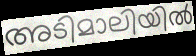
അടിമാലിയിൽ